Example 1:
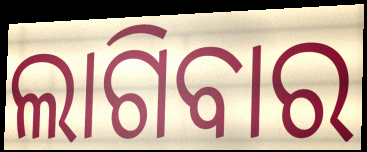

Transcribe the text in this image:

ଲାଗିବାର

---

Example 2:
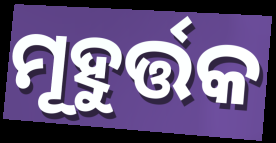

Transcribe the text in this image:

ମୂହୁର୍ତ୍ତକ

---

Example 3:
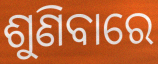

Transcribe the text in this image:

ଶୁଣିବାରେ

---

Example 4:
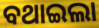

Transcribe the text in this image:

ବଥାଇଲା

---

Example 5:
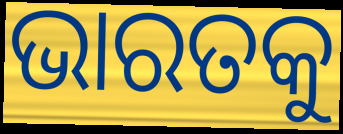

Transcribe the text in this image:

ଭାରତକୁ